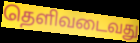
தெளிவடைவது